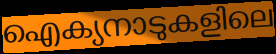
ഐക്യനാടുകളിലെ